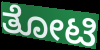
ತೋಟಿ